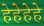
हेहेहेहे